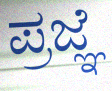
ಪ್ರಜ್ಞೆ